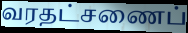
வரதட்சணைப்